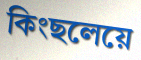
কিংছলেয়ে